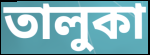
তালুকা